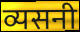
व्यसनी